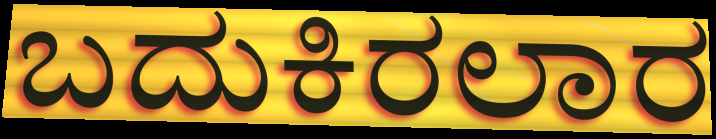
ಬದುಕಿರಲಾರ